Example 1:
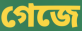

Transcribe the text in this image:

গেজে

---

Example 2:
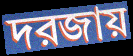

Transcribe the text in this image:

দরজায়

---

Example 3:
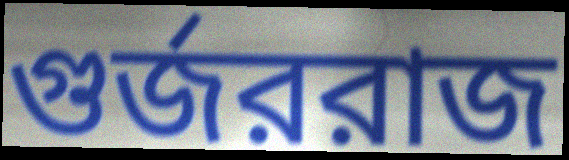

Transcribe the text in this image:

গুর্জররাজ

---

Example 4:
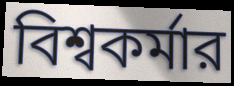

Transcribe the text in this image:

বিশ্বকর্মার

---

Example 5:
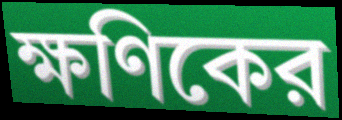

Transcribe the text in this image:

ক্ষণিকের